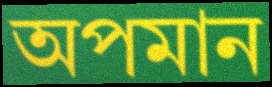
অপমান